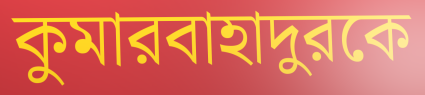
কুমারবাহাদুরকে